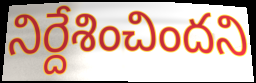
నిర్దేశించిందని